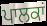
ਪਾਲਕਾਂ